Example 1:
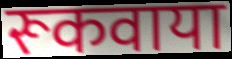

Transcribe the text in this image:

रूकवाया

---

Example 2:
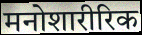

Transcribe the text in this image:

मनोशारीरिक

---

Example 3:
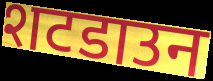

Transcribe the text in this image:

शटडाउन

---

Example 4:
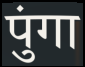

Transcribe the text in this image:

पुंगा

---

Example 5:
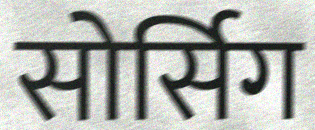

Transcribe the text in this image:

सोर्सिग